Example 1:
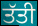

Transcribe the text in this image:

ਤੱਤੀ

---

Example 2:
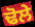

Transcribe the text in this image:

ਢੋਲੇ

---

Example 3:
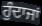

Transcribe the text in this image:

ਹੁੰਦਾਜਾਂ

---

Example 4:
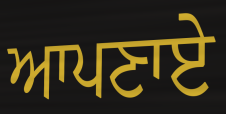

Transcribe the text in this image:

ਆਪਣਾਏ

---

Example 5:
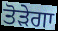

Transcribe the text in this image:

ਤੋੜੇਗਾ